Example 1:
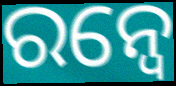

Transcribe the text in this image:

ରନ୍ୱେ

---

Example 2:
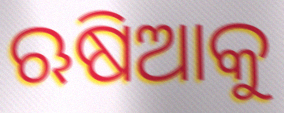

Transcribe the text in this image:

ଋଷିଆକୁ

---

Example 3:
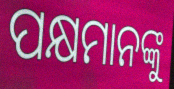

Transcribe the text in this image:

ପକ୍ଷମାନଙ୍କୁ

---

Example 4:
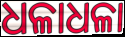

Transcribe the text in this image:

ଧଳାଧଳା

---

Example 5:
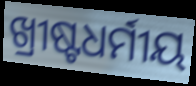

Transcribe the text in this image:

ଖ୍ରୀଷ୍ଟଧର୍ମୀୟ